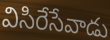
విసిరేసేవాడు